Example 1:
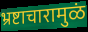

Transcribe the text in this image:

भ्रष्टाचारामुळं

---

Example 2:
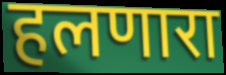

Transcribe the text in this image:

हलणारा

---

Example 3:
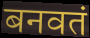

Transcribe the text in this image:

बनवतं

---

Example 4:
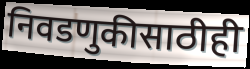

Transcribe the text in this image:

निवडणुकीसाठीही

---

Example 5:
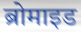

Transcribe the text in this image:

ब्रोमाइड